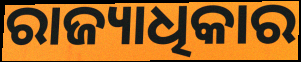
ରାଜ୍ୟାଧିକାର